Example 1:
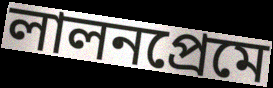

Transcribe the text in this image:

লালনপ্রেমে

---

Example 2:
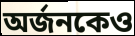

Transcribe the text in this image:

অর্জনকেও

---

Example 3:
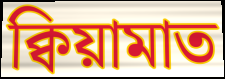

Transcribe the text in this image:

ক্বিয়ামাত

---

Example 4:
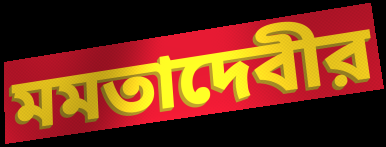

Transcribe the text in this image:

মমতাদেবীর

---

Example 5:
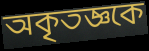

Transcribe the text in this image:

অকৃতজ্ঞকে